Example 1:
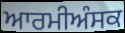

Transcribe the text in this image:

ਆਰਮੀਅੰਸਕ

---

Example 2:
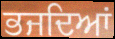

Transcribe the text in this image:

ਭਜਦਿਆਂ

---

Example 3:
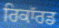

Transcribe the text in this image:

ਰਿਕਾੱਰਡ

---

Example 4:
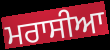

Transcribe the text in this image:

ਮਰਾਸੀਆ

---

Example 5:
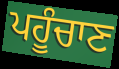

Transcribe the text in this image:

ਪਹੂੰਚਾਣ